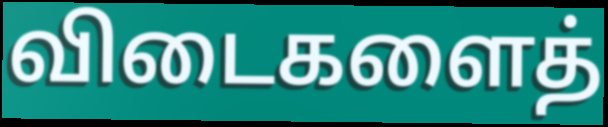
விடைகளைத்